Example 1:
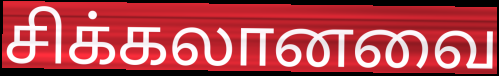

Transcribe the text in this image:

சிக்கலானவை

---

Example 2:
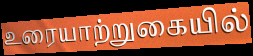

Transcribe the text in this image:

உரையாற்றுகையில்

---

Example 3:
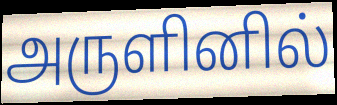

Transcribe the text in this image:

அருளினில்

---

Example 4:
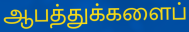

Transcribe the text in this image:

ஆபத்துக்களைப்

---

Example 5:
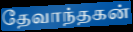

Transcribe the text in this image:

தேவாந்தகன்